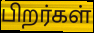
பிறர்கள்